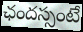
ఛందస్సంటే